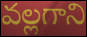
వల్లగాని